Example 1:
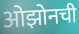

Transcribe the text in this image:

ओझोनची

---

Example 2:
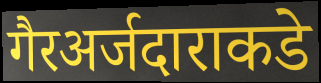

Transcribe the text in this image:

गैरअर्जदाराकडे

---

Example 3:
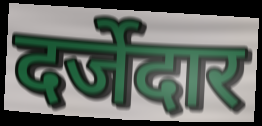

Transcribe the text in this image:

दर्जेदार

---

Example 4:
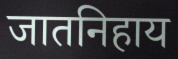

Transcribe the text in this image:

जातनिहाय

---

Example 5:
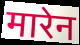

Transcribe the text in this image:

मारेन